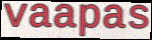
vaapas